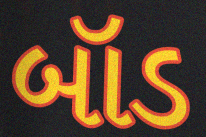
બૉડ